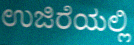
ಉಜಿರೆಯಲ್ಲಿ